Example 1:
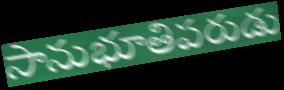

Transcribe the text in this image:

సానుభూతిపరుడు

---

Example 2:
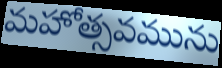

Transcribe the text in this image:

మహోత్సవమును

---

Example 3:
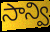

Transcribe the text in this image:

సాన్వి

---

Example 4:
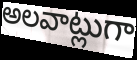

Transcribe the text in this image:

అలవాట్లుగా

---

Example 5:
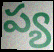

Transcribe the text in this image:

ప్య